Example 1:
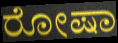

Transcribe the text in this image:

ರೋಷಾ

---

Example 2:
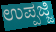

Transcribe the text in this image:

ಉಪ್ಪಜ್ಜಿ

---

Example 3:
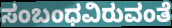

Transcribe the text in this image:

ಸಂಬಂಧವಿರುವಂತೆ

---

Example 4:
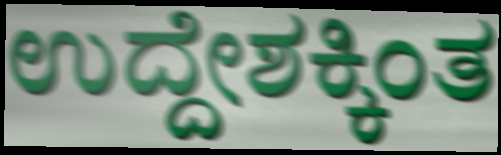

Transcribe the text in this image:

ಉದ್ದೇಶಕ್ಕಿಂತ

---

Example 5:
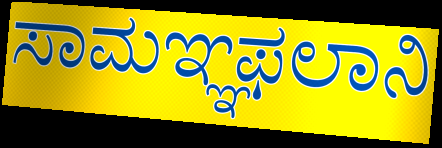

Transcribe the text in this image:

ಸಾಮಞ್ಞಫಲಾನಿ